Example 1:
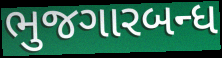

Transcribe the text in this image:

ભુજગારબન્ધ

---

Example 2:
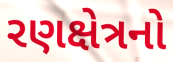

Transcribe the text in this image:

રણક્ષેત્રનો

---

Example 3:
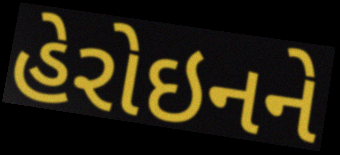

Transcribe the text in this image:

હેરોઇનને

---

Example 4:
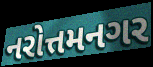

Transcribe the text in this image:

નરોત્તમનગર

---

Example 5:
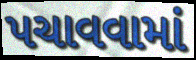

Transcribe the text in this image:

પચાવવામાં